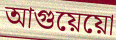
আগুয়েয়ো